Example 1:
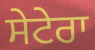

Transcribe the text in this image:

ਸੇਟੇਰਾ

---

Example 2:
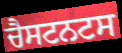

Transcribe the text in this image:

ਚੈਸਟਨਟਸ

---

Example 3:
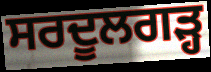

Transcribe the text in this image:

ਸਰਦੂਲਗੜ੍ਹ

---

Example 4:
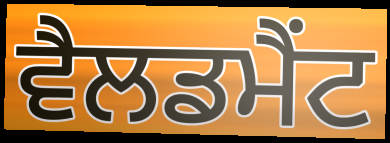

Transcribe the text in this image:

ਵੈਲਡਮੈਂਟ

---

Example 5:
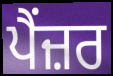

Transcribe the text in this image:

ਪੈਂਜ਼ਰ